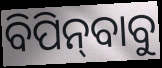
ବିପିନ୍‌ବାବୁ